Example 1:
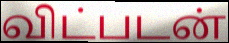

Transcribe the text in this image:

விட்படன்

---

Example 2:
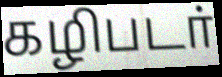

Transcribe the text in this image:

கழிபடர்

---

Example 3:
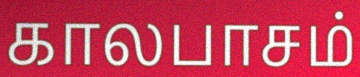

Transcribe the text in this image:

காலபாசம்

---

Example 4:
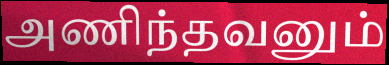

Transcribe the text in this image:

அணிந்தவனும்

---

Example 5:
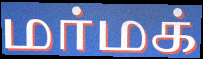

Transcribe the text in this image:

மர்மக்